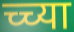
च्च्या